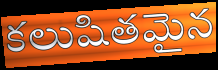
కలుషితమైన